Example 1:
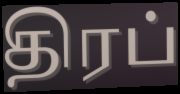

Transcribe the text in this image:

திரப்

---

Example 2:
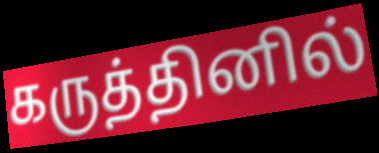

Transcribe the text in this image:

கருத்தினில்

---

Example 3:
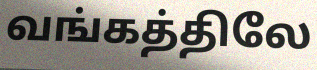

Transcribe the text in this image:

வங்கத்திலே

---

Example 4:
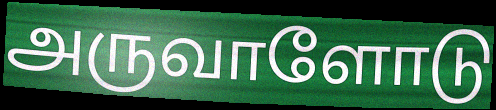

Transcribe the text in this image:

அருவாளோடு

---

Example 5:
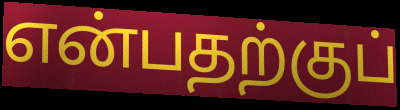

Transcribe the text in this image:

என்பதற்குப்